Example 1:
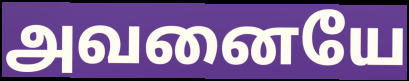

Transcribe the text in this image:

அவனையே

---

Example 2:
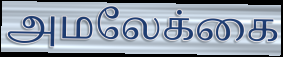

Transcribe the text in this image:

அமலேக்கை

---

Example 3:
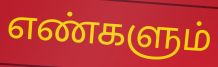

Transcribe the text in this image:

எண்களும்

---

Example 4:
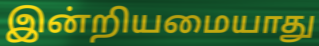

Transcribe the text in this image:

இன்றியமையாது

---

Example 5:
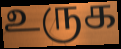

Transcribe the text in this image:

உருக